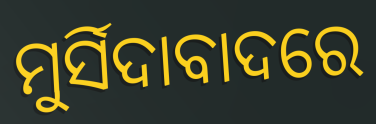
ମୁର୍ସିଦାବାଦରେ